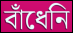
বাঁধেনি